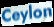
Ceylon